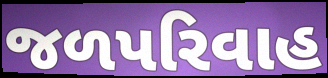
જળપરિવાહ